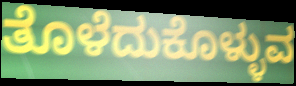
ತೊಳೆದುಕೊಳ್ಳುವ